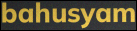
bahusyam